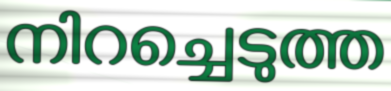
നിറച്ചെടുത്ത